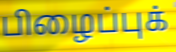
பிழைப்புக்